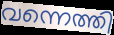
വന്നെത്തി